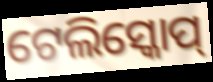
ଟେଲିସ୍କୋପ୍